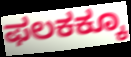
ಫಲಕಕ್ಕೂ